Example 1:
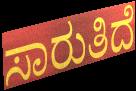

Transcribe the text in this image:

ಸಾರುತಿದೆ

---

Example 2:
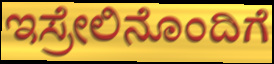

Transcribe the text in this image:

ಇಸ್ರೇಲಿನೊಂದಿಗೆ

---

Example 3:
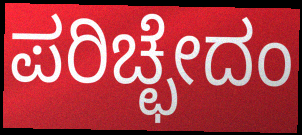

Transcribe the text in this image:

ಪರಿಚ್ಛೇದಂ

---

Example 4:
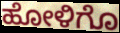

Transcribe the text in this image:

ಹೋಳಿಗೊ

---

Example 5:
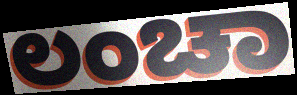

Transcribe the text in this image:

ಲಂಚಾ